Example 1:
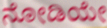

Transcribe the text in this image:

ನೋಡಿಯೇ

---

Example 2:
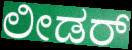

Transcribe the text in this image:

ಲೀಡರ್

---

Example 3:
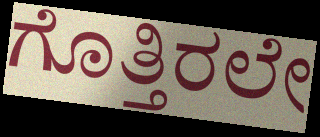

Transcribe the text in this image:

ಗೊತ್ತಿರಲೇ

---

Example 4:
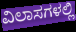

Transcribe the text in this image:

ವಿಲಾಸಗಳಲ್ಲಿ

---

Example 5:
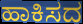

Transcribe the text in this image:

ಹಾಕಿಸದ